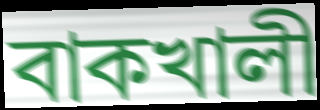
বাকখালী